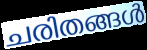
ചരിതങ്ങൾ